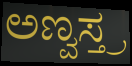
ಅಣ್ವಸ್ತ್ರ